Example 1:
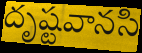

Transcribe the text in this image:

దృష్టవానసి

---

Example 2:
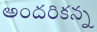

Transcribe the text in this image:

అందరికన్న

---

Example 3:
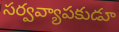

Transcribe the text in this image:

సర్వవ్యాపకుడూ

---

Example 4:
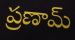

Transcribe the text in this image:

ప్రణామ్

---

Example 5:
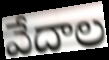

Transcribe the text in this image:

వేదాల